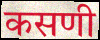
कसणी